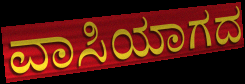
ವಾಸಿಯಾಗದ